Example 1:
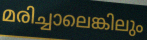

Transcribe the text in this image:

മരിച്ചാലെങ്കിലും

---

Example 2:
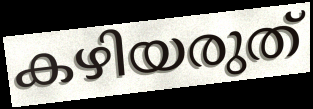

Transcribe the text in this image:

കഴിയരുത്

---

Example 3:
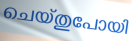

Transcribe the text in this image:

ചെയ്തുപോയി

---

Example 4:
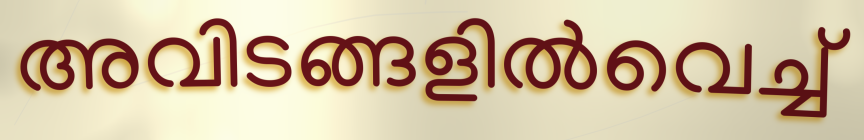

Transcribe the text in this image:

അവിടങ്ങളിൽവെച്ച്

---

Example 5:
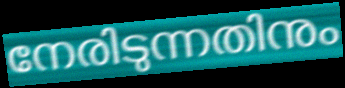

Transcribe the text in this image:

നേരിടുന്നതിനും